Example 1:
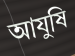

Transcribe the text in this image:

আযুষি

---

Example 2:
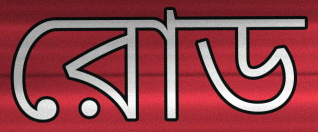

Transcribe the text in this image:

রোড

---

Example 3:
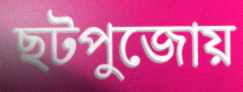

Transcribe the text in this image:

ছটপুজোয়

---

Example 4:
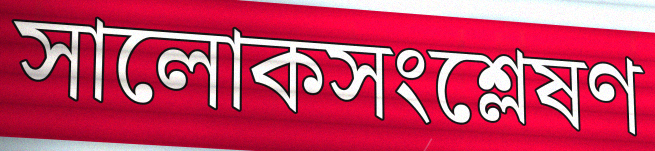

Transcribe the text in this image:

সালোকসংশ্লেষণ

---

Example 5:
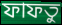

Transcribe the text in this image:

ফাফতু